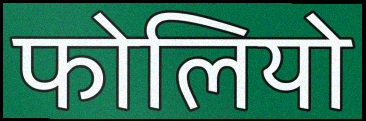
फोलियो